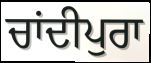
ਚਾਂਦੀਪੁਰਾ